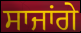
ਸਾਜਾਂਗੇ